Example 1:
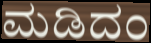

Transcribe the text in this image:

ಮಡಿದಂ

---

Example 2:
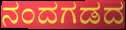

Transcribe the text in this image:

ನಂದಗಡದ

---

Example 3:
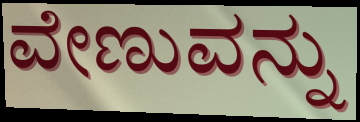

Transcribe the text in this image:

ವೇಣುವನ್ನು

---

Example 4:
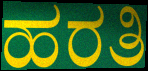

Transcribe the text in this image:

ಹರತಿ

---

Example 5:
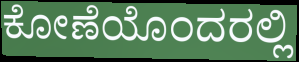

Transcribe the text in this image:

ಕೋಣೆಯೊಂದರಲ್ಲಿ